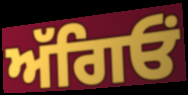
ਅੱਗਿਓਂ